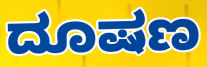
ದೂಷಣ